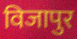
विजापुर